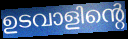
ഉടവാളിന്റെ